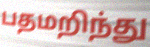
பதமறிந்து